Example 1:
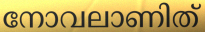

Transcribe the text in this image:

നോവലാണിത്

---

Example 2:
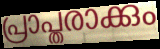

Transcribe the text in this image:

പ്രാപ്തരാക്കും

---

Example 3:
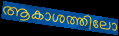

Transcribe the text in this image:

ആകാശത്തിലോ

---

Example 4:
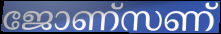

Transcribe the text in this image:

ജോണ്സണ്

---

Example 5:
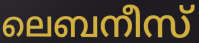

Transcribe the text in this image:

ലെബനീസ്